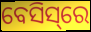
ବେସିସ୍‌ରେ